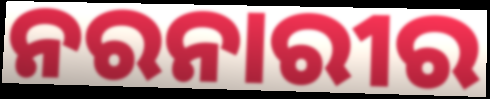
ନରନାରୀର